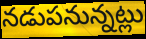
నడుపనున్నట్లు